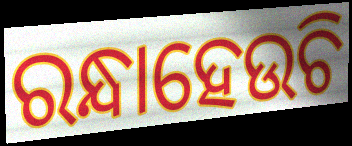
ରନ୍ଧାହେଉଚି